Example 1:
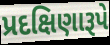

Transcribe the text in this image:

પ્રદક્ષિણારૂપે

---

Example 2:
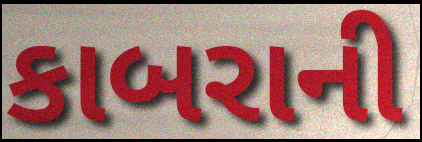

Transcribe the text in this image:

કાબરાની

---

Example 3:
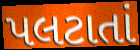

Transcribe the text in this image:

પલટાતાં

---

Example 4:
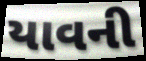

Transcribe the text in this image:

યાવની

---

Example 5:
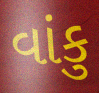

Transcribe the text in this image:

વાંકુ